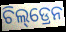
ଚିଲ୍‌ଡ୍ରେନ